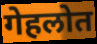
गेहलोत